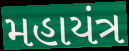
મહાયંત્ર